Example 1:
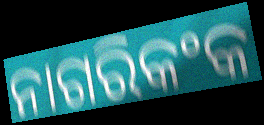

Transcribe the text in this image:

ନାଗରିକଂକ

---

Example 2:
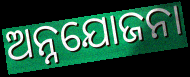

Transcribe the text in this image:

ଅନ୍ନଯୋଜନା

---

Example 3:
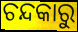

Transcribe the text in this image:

ଚନ୍ଦକାରୁ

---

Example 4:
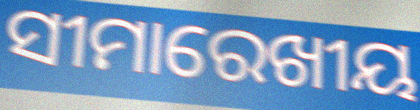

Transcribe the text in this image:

ସୀମାରେଖୀୟ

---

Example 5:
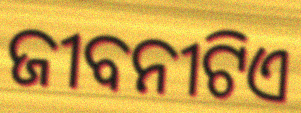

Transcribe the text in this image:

ଜୀବନୀଟିଏ